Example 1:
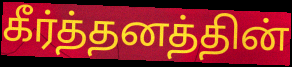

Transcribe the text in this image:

கீர்த்தனத்தின்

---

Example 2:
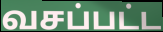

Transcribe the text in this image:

வசப்பட்ட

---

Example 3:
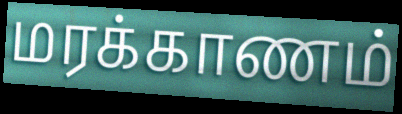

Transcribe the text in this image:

மரக்காணம்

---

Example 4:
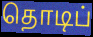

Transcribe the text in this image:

தொடிப்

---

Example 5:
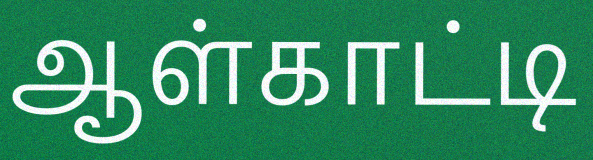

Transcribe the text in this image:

ஆள்காட்டி